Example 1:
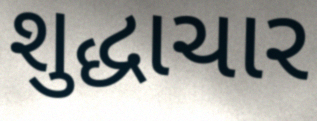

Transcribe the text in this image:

શુદ્ધાચાર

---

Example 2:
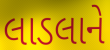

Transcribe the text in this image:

લાડલાને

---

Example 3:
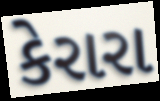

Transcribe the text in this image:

કેરારા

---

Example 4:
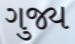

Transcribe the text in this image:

ગુજ્ય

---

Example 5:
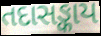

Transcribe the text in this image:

તદાસઙ્કાય